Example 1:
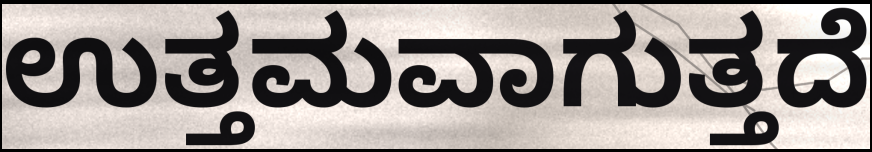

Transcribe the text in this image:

ಉತ್ತಮವಾಗುತ್ತದೆ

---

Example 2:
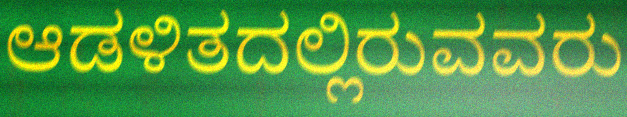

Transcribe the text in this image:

ಆಡಳಿತದಲ್ಲಿರುವವರು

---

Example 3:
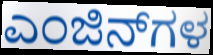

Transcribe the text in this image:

ಎಂಜಿನ್‌ಗಳ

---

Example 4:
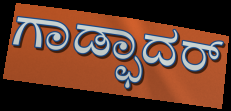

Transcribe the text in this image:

ಗಾಡ್ಫಾದರ್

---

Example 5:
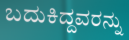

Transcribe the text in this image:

ಬದುಕಿದ್ದವರನ್ನು